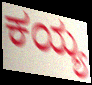
ಕಯ್ಯ